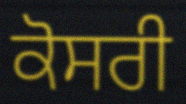
ਕੋਸਰੀ